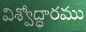
విశ్వోద్ధారము